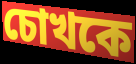
চোখকে